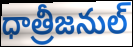
ధాత్రీజనుల్